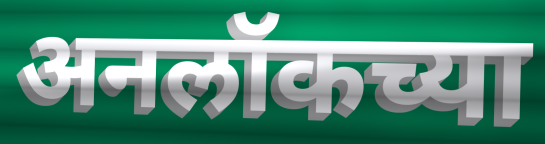
अनलॉकच्या